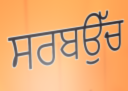
ਸਰਬਉੱਚ